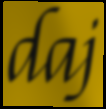
daj